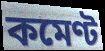
কমেণ্ট